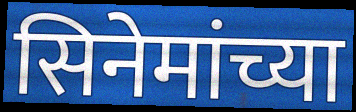
सिनेमांच्या